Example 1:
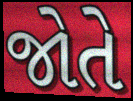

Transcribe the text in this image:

જોતે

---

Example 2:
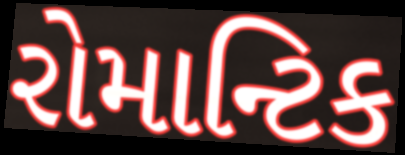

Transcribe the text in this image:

રોમાન્ટિક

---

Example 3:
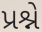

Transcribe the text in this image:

પ્રશ્ને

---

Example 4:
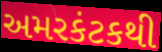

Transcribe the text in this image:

અમરકંટકથી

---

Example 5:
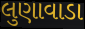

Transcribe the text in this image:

લુણાવાડા